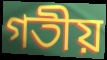
গতীয়